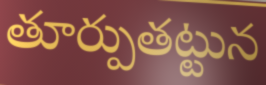
తూర్పుతట్టున